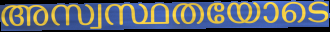
അസ്വസ്ഥതയോടെ